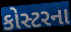
કોસ્ટરના